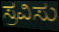
ಸ್ರವಿಸು